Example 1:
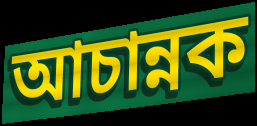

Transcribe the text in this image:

আচান্নক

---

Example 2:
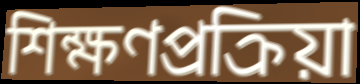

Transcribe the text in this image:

শিক্ষণপ্রক্রিয়া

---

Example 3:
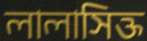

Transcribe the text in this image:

লালাসিক্ত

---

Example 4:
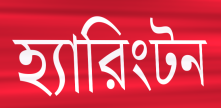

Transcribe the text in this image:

হ্যারিংটন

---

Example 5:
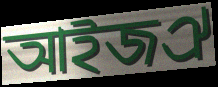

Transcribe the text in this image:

আইজঐ